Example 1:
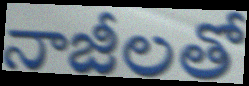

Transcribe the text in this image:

నాజీలతో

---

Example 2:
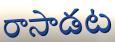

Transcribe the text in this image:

రాసాడట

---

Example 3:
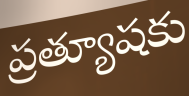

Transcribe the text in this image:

ప్రత్యూషకు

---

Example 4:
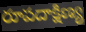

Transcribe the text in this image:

రూపదాక్షిణ్య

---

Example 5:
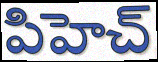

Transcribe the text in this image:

పిహెచ్